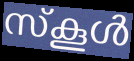
സ്‌കൂൾ